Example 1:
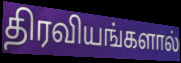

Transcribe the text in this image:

திரவியங்களால்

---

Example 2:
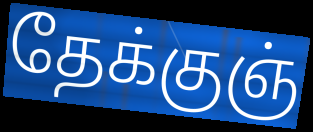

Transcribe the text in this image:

தேக்குஞ்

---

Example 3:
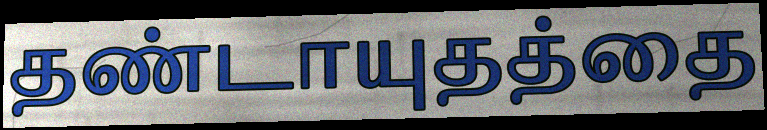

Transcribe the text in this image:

தண்டாயுதத்தை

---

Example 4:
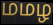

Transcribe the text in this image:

மமழ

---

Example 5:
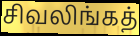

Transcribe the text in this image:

சிவலிங்கத்